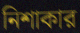
নিশাকার